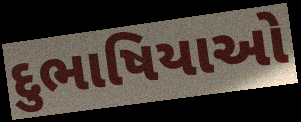
દુભાષિયાઓ